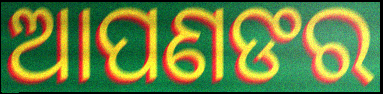
ଆପଣଙର